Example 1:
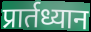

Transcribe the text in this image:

प्रार्तध्यान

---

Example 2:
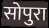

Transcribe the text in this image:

सोपुरा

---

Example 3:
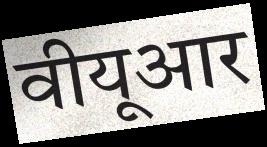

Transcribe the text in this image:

वीयूआर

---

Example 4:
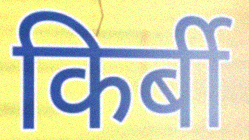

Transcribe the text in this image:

किर्बी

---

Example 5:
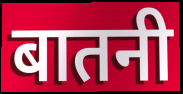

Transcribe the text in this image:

बातनी